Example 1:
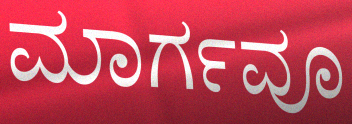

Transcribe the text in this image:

ಮಾರ್ಗವೂ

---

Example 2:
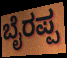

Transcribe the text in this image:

ಬೈರಪ್ಪ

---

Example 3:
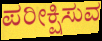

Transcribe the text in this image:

ಪರೀಕ್ಷಿಸುವ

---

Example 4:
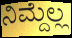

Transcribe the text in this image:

ನಿಮ್ದೆಲ್ಲ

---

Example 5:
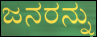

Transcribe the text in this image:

ಜನರನ್ನು